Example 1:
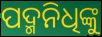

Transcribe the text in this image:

ପଦ୍ମନିଧିଙ୍କୁ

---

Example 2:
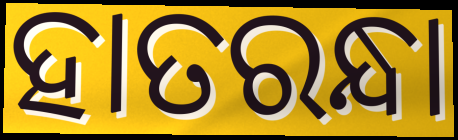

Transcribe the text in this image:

ହାତରନ୍ଧା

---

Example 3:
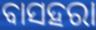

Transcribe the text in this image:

ବାସହରା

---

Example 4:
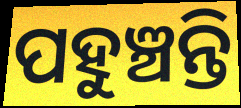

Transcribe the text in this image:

ପହୁଞ୍ଚନ୍ତି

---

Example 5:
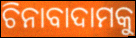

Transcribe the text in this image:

ଚିନାବାଦାମକୁ